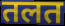
तलत